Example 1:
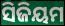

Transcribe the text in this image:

ସିଜିୟମ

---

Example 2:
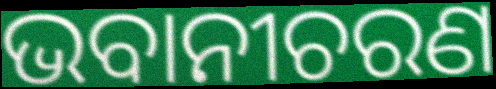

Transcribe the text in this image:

ଭବାନୀଚରଣ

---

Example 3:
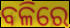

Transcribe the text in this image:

ବଳିରେ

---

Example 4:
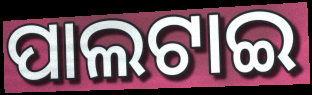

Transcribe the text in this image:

ପାଲଟାଇ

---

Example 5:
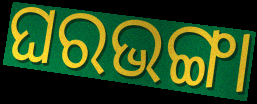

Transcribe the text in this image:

ଘରଭଙ୍ଗା